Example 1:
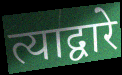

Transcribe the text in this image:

त्याद्वारे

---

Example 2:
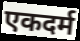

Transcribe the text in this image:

एकदर्म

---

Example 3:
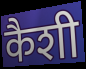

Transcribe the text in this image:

कैशी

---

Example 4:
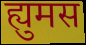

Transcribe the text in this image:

ह्युमस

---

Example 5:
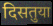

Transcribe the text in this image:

दिसतुया